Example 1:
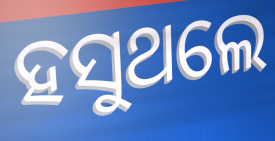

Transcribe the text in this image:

ହସୁଥଲେ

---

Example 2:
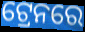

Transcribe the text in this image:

ଟ୍ରେନରେ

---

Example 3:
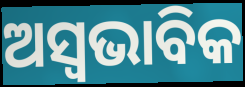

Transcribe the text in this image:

ଅସ୍ୱଭାବିକ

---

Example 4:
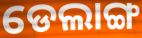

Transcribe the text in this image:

ଡେଲାଙ୍ଗ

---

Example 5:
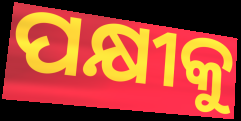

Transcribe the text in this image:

ପକ୍ଷୀକୁ